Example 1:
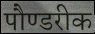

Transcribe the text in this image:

पौण्डरीक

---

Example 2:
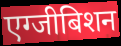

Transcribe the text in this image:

एग्जीबिशन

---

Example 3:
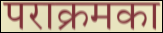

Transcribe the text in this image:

पराक्रमका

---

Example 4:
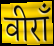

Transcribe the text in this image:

वीराँ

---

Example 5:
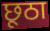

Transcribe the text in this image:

छूठा